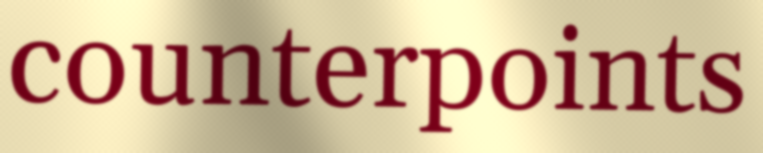
counterpoints